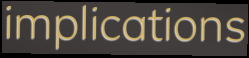
implications